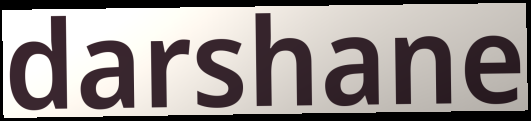
darshane